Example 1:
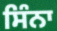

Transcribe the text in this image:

ਸਿੰਨਾ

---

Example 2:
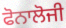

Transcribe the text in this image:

ਫੋਨਾਲੋਜੀ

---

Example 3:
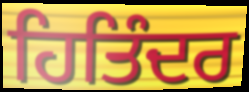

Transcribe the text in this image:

ਹਿਤਿੰਦਰ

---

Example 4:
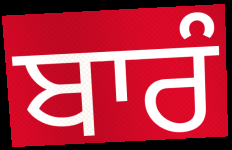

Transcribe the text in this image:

ਬਾਰੰ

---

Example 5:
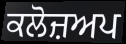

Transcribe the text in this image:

ਕਲੋਜ਼ਅਪ